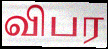
விபர